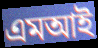
এমআই